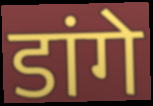
डांगे